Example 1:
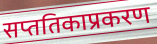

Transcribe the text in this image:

सप्ततिकाप्रकरण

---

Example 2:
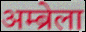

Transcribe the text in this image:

अम्‍ब्रेला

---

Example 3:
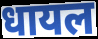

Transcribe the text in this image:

धायल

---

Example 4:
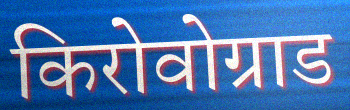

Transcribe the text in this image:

किरोवोग्राड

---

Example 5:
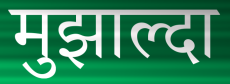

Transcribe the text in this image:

मुझाल्दा